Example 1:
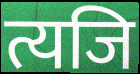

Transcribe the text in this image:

त्यजि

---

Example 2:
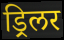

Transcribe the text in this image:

ड्रिलर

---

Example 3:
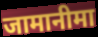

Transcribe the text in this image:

जामानीमा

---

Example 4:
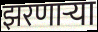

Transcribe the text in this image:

झरणाऱ्या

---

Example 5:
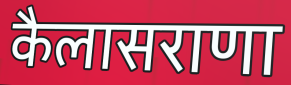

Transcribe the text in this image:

कैलासराणा